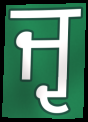
ਜ੍ਦ